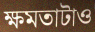
ক্ষমতাটাও